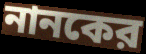
নানকের